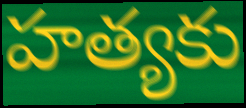
హత్యకు